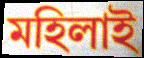
মহিলাই